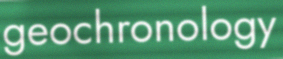
geochronology